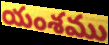
యంశము